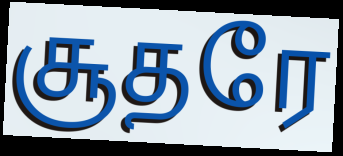
சூதரே